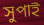
সুপাই